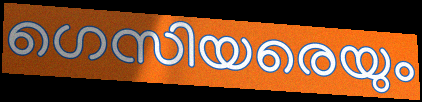
ഗെസിയരെയും